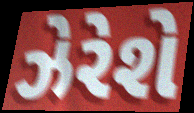
ઝેરેશે